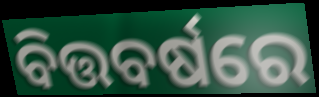
ବିତ୍ତବର୍ଷରେ